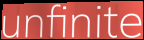
unfinite